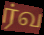
ர்வ